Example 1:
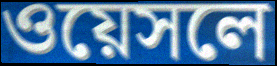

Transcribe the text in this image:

ওয়েসলে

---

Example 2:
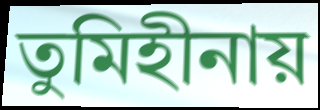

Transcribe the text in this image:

তুমিহীনায়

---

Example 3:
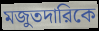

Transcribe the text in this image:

মজুতদারিকে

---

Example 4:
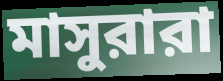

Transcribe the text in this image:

মাসুরারা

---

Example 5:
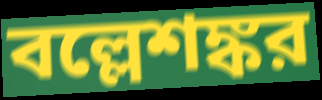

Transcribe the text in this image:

বল্লেশঙ্কর